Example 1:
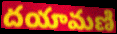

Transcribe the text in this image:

దయామణి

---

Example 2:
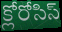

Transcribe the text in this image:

క్లోరోసిస్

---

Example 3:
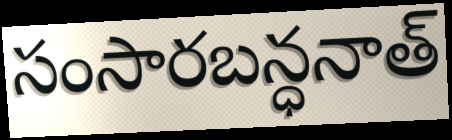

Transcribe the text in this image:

సంసారబన్ధనాత్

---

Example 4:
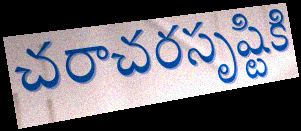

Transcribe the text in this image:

చరాచరసృష్టికి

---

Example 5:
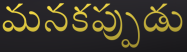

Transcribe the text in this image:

మనకప్పుడు